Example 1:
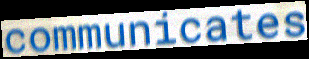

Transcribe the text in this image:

communicates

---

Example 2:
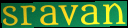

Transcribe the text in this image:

sravan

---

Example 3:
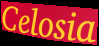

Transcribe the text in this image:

Celosia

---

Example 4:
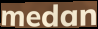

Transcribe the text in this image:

medan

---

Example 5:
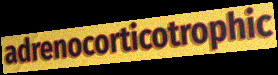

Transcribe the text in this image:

adrenocorticotrophic